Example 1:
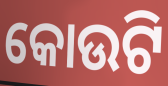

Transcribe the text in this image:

କୋଉଟି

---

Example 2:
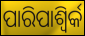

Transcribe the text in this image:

ପାରିପାଶ୍ୱିର୍କ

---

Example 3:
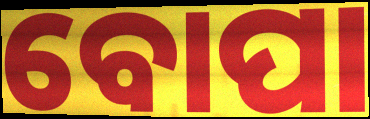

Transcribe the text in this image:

ବୋପା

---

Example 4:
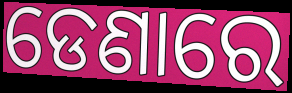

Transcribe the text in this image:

ଡେଣାରେ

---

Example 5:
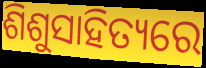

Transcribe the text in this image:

ଶିଶୁସାହିତ୍ୟରେ